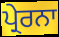
ਪ੍ਰੇਰਨਾ